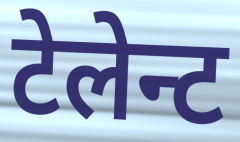
टेलेन्ट